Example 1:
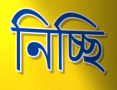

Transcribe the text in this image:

নিচ্ছি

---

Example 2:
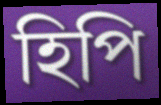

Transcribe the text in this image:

হিপি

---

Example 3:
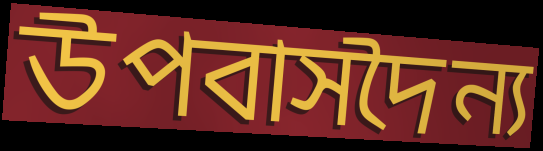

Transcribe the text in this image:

উপবাসদৈন্য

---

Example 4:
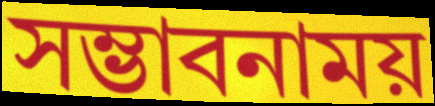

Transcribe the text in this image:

সম্ভাবনাময়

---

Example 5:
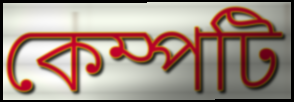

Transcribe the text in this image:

কেম্পটি